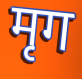
मृग